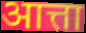
आत्ता